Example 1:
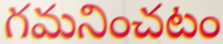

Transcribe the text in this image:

గమనించటం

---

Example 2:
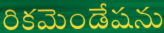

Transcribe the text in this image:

రికమెండేషను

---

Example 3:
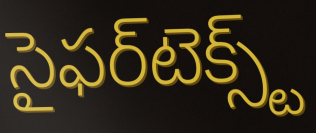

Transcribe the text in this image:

సైఫర్‌టెక్స్ట్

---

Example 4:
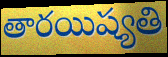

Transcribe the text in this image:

తారయిష్యతి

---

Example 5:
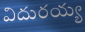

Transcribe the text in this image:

విదురయ్య